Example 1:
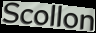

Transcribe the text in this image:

Scollon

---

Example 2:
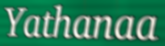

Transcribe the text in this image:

Yathanaa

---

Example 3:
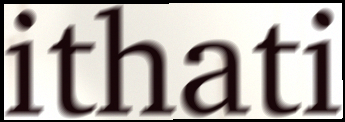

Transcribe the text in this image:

ithati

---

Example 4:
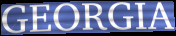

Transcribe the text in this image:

GEORGIA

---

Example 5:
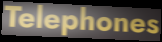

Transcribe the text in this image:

Telephones